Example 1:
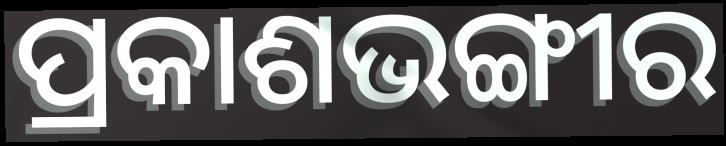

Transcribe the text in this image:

ପ୍ରକାଶଭଙ୍ଗୀର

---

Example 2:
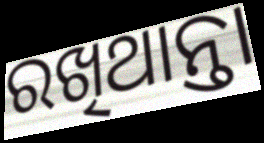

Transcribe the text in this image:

ରଖିଥାନ୍ତା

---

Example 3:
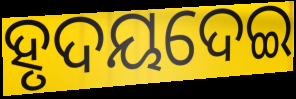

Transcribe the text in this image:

ହୃଦୟଦେଇ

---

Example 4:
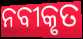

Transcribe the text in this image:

ନବୀକୃତ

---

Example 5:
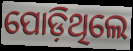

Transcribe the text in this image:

ପୋଡ଼ିଥିଲେ